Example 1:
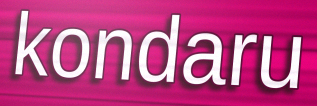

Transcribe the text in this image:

kondaru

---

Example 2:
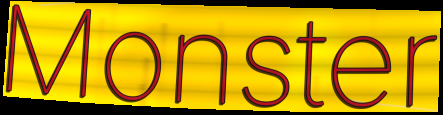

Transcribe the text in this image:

Monster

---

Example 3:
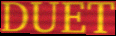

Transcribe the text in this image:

DUET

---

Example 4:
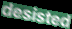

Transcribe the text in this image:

desisted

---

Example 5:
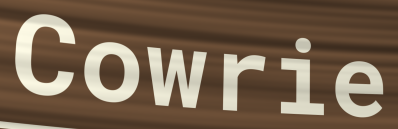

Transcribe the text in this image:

Cowrie